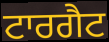
ਟਾਰਗੈਟ